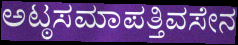
ಅಟ್ಠಸಮಾಪತ್ತಿವಸೇನ